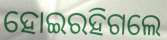
ହୋଇରହିଗଲେ